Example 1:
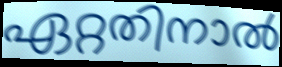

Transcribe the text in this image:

ഏറ്റതിനാൽ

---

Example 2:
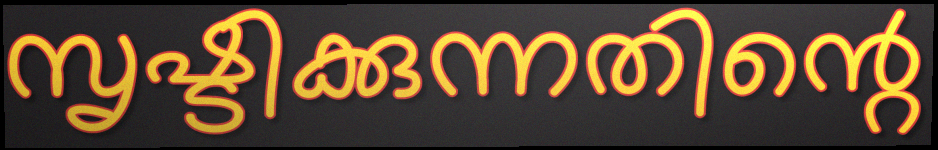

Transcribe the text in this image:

സൃഷ്ടിക്കുന്നതിന്റെ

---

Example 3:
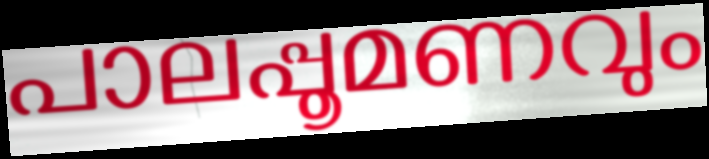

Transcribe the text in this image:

പാലപ്പൂമണവും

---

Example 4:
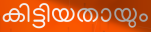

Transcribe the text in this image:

കിട്ടിയതായും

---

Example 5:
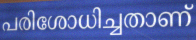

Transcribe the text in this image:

പരിശോധിച്ചതാണ്